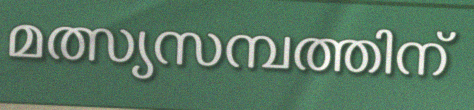
മത്സ്യസമ്പത്തിന്